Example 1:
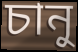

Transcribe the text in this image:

চানু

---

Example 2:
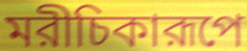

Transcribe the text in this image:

মরীচিকারূপে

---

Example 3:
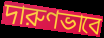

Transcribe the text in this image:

দারুণভাবে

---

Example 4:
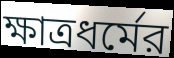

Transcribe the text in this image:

ক্ষাত্রধর্মের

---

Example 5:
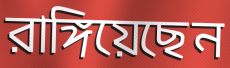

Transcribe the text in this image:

রাঙ্গিয়েছেন